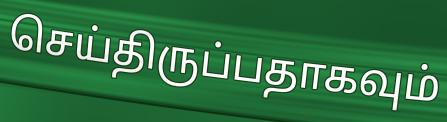
செய்திருப்பதாகவும்